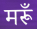
मरूँ